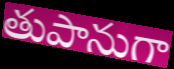
తుపానుగా